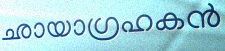
ഛായാഗ്രഹകൻ